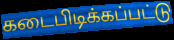
கடைபிடிக்கப்பட்டு